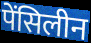
पेंसिलीन